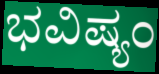
ಭವಿಷ್ಯಂ